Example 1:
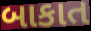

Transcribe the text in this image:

બાકાત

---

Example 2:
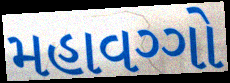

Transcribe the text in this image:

મહાવગ્ગો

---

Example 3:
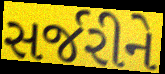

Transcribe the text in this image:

સર્જરીને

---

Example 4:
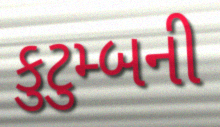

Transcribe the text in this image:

કુટુમ્બની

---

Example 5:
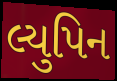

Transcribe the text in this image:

લ્યુપિન